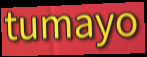
tumayo